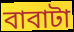
বাবাটা